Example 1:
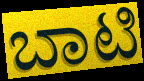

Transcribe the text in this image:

ಬಾಟಿ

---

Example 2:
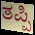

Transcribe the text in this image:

ತಪ್ಪಿ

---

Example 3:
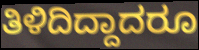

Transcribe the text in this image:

ತಿಳಿದಿದ್ದಾದರೂ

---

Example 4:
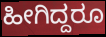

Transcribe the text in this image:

ಹೀಗಿದ್ದರೂ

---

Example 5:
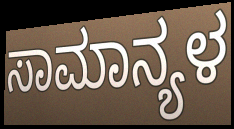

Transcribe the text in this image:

ಸಾಮಾನ್ಯಳ